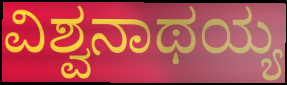
ವಿಶ್ವನಾಥಯ್ಯ